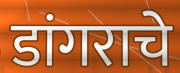
डांगराचे